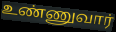
உண்ணுவார்